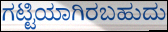
ಗಟ್ಟಿಯಾಗಿರಬಹುದು